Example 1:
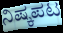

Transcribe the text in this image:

ನಿಷ್ಕಪಟ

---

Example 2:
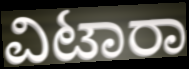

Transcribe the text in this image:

ವಿಟಾರಾ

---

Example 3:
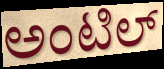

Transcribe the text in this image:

ಅಂಟಿಲ್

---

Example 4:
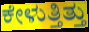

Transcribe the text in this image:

ಕೇಳುತ್ತಿತ್ತು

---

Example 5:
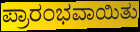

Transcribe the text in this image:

ಪ್ರಾರಂಭವಾಯಿತು